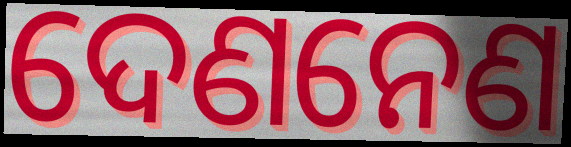
ଦେଣନେଣ